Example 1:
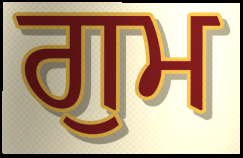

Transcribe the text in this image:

ਗੁਮ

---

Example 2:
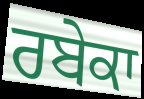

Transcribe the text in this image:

ਰਬੇਕਾ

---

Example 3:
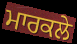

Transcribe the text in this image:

ਮਾਰਕਲੇ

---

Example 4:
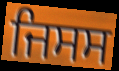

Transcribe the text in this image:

ਜਿਸਸ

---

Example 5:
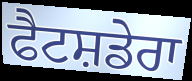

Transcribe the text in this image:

ਫੈਟਸ਼ਡੇਰਾ